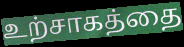
உற்சாகத்தை